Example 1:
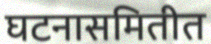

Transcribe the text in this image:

घटनासमितीत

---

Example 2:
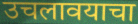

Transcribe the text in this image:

उचलावयाचा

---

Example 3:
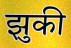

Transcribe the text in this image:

झुकी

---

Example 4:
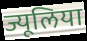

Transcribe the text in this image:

ज्यूलिया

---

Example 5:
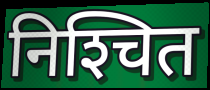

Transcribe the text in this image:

निश्‍चित